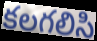
కలగలిసి